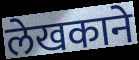
लेखकाने